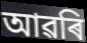
আৱৰি